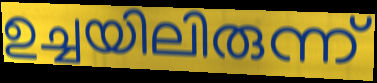
ഉച്ചയിലിരുന്ന്